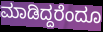
ಮಾಡಿದ್ದರೆಂದೂ